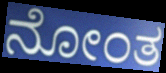
ನೋಂತ